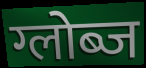
ग्लोब्ज